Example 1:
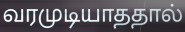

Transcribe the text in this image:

வரமுடியாததால்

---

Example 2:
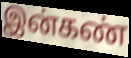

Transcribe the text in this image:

இன்கண்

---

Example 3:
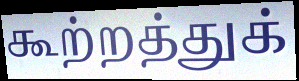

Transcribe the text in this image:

கூற்றத்துக்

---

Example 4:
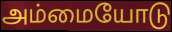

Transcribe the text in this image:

அம்மையோடு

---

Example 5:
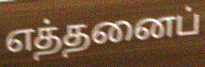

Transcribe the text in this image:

எத்தனைப்